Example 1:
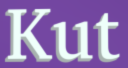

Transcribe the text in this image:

Kut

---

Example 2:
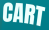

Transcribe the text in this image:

CART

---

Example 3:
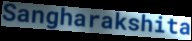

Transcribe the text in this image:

Sangharakshita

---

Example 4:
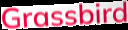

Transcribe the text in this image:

Grassbird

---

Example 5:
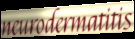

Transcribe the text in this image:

neurodermatitis